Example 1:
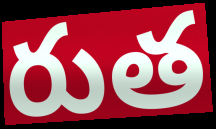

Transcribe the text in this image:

రుత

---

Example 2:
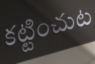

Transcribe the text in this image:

కట్టించుట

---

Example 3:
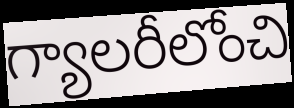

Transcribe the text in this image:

గ్యాలరీలోంచి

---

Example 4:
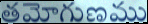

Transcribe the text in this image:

తమోగుణము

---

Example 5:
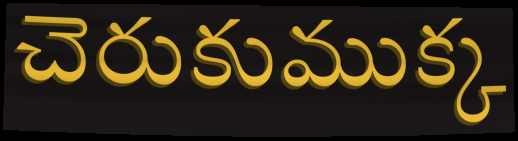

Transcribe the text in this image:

చెరుకుముక్క